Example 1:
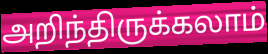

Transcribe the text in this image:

அறிந்திருக்கலாம்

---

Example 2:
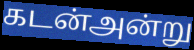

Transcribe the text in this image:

கடன்அன்று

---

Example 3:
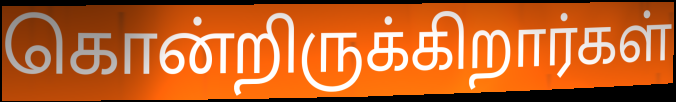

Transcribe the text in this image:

கொன்றிருக்கிறார்கள்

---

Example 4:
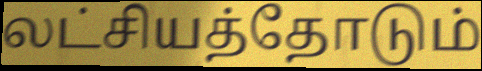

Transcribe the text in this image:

லட்சியத்தோடும்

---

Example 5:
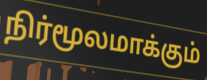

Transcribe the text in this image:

நிர்மூலமாக்கும்